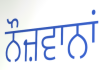
ਨੌਜ਼ਵਾਨਾਂ